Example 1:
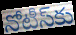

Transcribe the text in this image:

నోటీస్‌కు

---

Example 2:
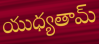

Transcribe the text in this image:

యుధ్యతామ్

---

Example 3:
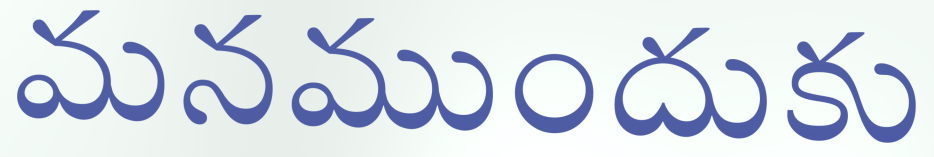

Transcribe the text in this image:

మనముందుకు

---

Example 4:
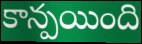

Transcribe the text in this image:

కాన్పయింది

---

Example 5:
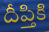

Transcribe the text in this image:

దీప్తికి